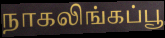
நாகலிங்கப்பூ